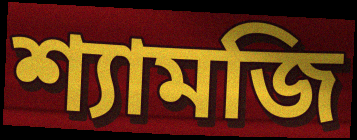
শ্যামজি